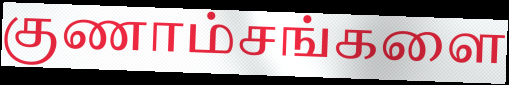
குணாம்சங்களை